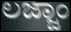
ಲಜ್ಜಾಂ